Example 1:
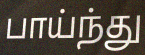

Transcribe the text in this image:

பாய்ந்து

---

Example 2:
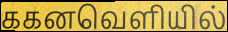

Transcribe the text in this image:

ககனவெளியில்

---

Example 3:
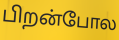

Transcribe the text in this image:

பிறன்போல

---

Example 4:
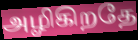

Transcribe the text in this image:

அழிகிறதே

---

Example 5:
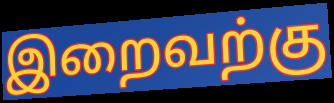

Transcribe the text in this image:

இறைவற்கு